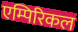
एम्पिरिकल